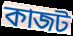
কাজট